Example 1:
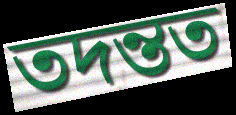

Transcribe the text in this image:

তদন্তত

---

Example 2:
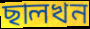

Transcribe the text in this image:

ছালখন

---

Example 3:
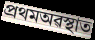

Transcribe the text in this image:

প্ৰথমঅৱস্থাত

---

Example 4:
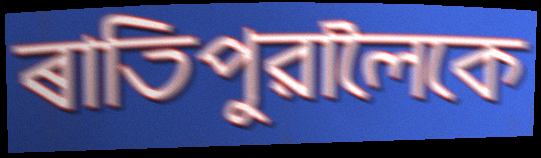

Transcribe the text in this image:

ৰাতিপুৱালৈকে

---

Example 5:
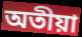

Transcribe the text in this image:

অতীয়া